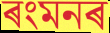
ৰংমনৰ